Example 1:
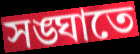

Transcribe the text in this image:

সঙ্ঘাতে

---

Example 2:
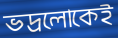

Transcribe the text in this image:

ভদ্রলোকেই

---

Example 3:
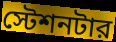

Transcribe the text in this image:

স্টেশনটার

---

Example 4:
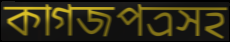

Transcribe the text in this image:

কাগজপত্রসহ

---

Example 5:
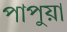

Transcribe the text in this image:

পাপুয়া